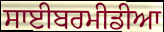
ਸਾਈਬਰਮੀਡੀਆ